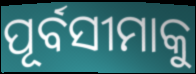
ପୂର୍ବସୀମାକୁ